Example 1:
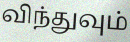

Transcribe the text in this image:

விந்துவும்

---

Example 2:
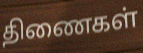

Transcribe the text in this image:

திணைகள்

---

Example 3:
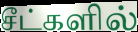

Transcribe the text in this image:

சீட்களில்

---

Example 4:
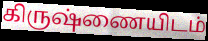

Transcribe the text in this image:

கிருஷ்ணையிடம்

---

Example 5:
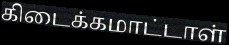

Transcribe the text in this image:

கிடைக்கமாட்டாள்